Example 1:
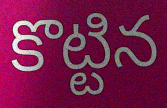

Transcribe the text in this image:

కొట్టిన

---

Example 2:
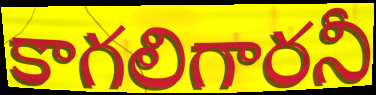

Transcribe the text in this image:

కాగలిగారనీ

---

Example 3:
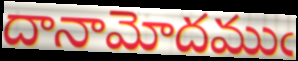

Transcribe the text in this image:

దానామోదముఁ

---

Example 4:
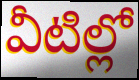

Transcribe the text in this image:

వీటిల్లో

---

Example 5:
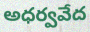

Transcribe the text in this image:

అధర్వవేద